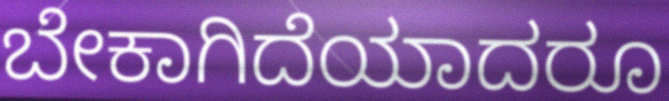
ಬೇಕಾಗಿದೆಯಾದರೂ